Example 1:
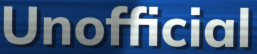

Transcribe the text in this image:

Unofficial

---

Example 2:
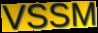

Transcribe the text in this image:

VSSM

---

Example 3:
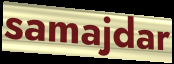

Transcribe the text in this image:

samajdar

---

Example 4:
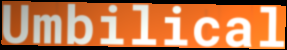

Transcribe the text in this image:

Umbilical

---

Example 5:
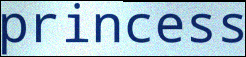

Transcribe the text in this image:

princess